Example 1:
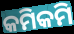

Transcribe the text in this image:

କମିକମି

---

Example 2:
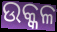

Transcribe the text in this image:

ଉକ୍କଳ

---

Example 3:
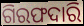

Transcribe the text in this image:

ଗିରଫଦାରି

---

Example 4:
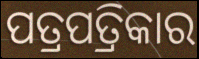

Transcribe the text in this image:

ପତ୍ରପତ୍ରିକାର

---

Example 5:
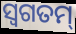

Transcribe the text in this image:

ସ୍ୱଗତମ୍